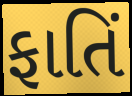
ફાતિં